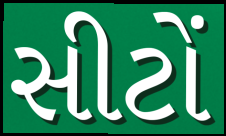
સીટોં